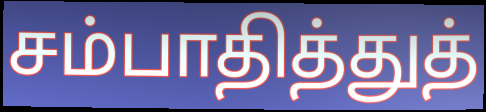
சம்பாதித்துத்